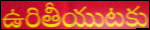
ఉరితీయుటకు